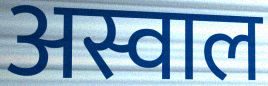
अस्वाल